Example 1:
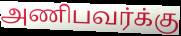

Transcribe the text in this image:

அணிபவர்க்கு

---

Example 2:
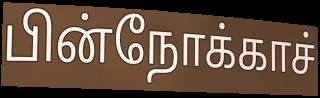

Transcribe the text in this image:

பின்நோக்காச்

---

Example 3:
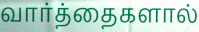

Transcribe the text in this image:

வார்த்தைகளால்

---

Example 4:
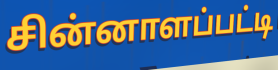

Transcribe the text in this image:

சின்னாளப்பட்டி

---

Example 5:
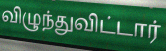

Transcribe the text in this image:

விழுந்துவிட்டார்